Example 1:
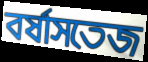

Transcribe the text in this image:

বর্ষাসতেজ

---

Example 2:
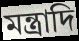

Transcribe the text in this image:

মন্ত্রাদি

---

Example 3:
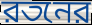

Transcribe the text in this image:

রতনের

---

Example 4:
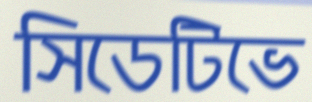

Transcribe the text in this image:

সিডেটিভে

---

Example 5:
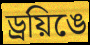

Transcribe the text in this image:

ড্রয়িঙে